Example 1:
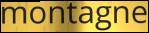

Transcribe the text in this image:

montagne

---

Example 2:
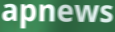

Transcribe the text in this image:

apnews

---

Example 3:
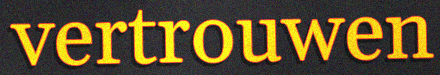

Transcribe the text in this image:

vertrouwen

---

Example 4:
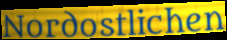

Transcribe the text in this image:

Nordostlichen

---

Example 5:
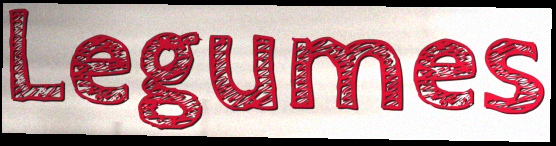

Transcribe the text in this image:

Legumes